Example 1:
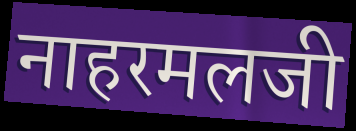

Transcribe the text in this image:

नाहरमलजी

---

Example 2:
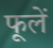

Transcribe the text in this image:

फूलें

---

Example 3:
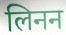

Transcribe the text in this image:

लिनन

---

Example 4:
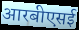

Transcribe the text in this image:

आरबीएसई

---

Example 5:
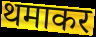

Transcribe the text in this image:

थमाकर